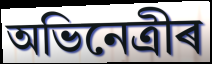
অভিনেত্ৰীৰ